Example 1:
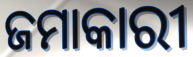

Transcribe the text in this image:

ଜମାକାରୀ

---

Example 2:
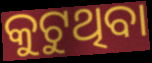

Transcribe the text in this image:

କୁଟୁଥିବା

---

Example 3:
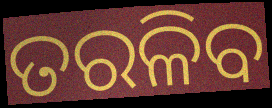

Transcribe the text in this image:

ତରଳିବ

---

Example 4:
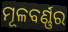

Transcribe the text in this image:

ମୂଳବର୍ଣ୍ଣର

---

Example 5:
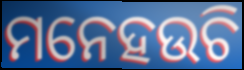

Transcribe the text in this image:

ମନେହଉଚି